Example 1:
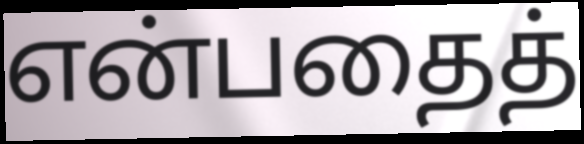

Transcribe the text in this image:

என்பதைத்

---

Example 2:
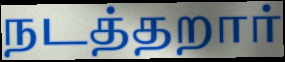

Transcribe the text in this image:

நடத்தறார்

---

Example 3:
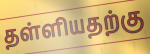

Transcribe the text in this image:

தள்ளியதற்கு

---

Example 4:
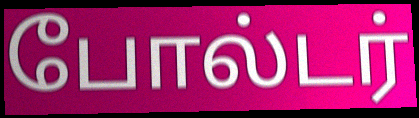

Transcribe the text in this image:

போல்டர்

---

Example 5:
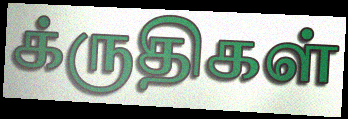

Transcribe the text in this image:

க்ருதிகள்